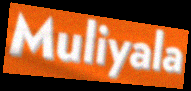
Muliyala